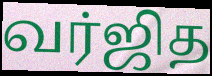
வர்ஜித